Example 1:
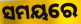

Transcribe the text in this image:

ସମୟରେ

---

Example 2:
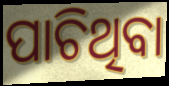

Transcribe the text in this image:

ପାଚିଥିବା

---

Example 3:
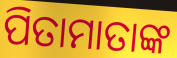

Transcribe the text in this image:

ପିତାମାତାଙ୍କ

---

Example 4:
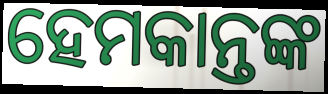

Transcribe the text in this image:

ହେମକାନ୍ତଙ୍କ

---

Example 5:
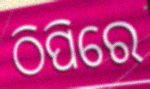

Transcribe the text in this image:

ଠିପିରେ